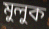
মুলুক